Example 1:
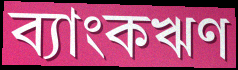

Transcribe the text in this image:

ব্যাংকঋণ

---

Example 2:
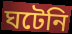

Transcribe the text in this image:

ঘটেনি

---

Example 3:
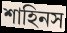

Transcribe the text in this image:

শাহিনস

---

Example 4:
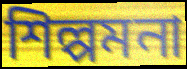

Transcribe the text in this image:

শিল্পমনা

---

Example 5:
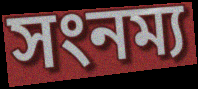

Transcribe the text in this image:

সংনম্য